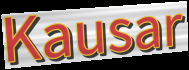
Kausar